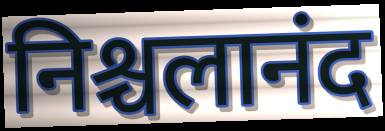
निश्चलानंद